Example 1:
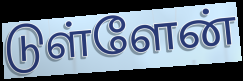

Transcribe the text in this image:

டுள்ளேன்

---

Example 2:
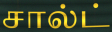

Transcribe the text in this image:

சால்ட்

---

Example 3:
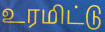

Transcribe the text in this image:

உரமிட்டு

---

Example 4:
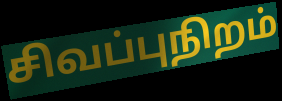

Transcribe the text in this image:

சிவப்புநிறம்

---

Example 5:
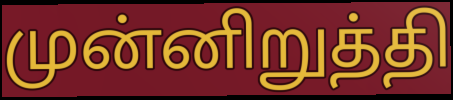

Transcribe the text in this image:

முன்னிறுத்தி